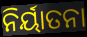
ନିର୍ୟାତନା